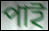
পাই